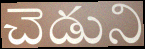
చెడుని